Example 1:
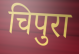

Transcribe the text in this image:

चिपुरा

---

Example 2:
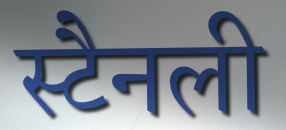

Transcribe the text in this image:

स्टैनली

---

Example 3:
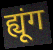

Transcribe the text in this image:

ह्यूंग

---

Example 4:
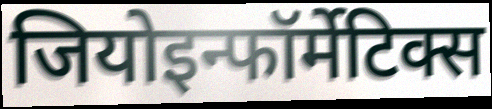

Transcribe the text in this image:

जियोइन्फॉर्मेटिक्स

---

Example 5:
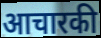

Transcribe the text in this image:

आचारकी